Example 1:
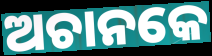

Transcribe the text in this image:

ଅଚାନକେ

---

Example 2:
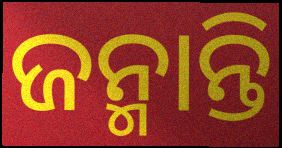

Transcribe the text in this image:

ଜନ୍ମାନ୍ତି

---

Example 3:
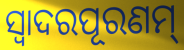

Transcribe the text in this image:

ସ୍ଵାଦରପୂରଣମ୍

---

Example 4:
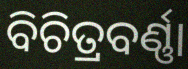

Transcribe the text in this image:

ବିଚିତ୍ରବର୍ଣ୍ଣା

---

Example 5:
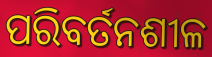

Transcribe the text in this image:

ପରିବର୍ତନଶୀଳ